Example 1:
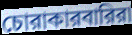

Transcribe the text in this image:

চোরাকারবারিরা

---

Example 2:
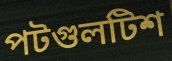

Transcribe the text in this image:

পটগুলটিশ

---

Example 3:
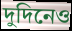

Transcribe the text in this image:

দুদিনেও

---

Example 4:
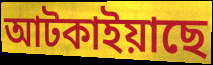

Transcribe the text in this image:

আটকাইয়াছে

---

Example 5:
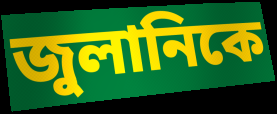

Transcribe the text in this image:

জুলানিকে